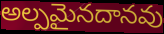
అల్పమైనదానవు